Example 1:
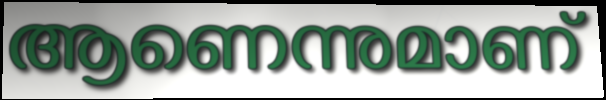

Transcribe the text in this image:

ആണെന്നുമാണ്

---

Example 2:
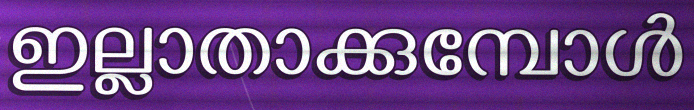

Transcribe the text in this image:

ഇല്ലാതാക്കുമ്പോൾ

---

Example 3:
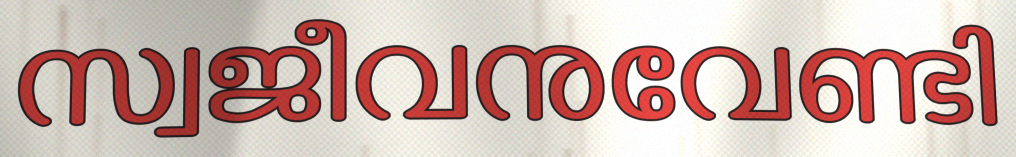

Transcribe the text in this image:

സ്വജീവനുവേണ്ടി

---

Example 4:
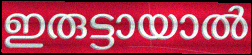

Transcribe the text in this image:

ഇരുട്ടായാൽ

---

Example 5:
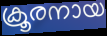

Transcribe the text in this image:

ക്രൂരനായ